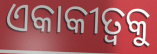
ଏକାକୀତ୍ଵକୁ